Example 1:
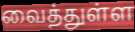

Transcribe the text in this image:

வைத்துள்ள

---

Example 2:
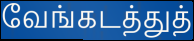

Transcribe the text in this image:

வேங்கடத்துத்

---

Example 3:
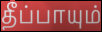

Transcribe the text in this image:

தீப்பாயும்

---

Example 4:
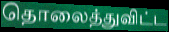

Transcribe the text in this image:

தொலைத்துவிட்ட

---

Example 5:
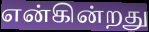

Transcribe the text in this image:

என்கின்றது